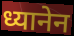
ध्यानेन